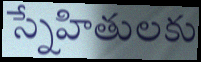
స్నేహితులకు